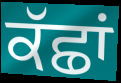
ਕੱਛਾਂ